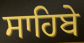
ਸਾਹਿਬੇ